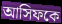
আসিফকে